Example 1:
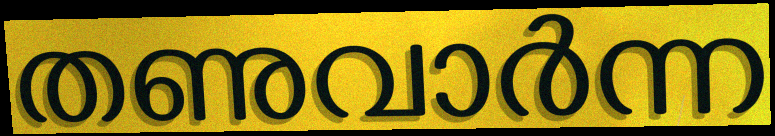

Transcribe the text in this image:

തണുവാർന്ന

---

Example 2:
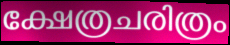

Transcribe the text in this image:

ക്ഷേത്രചരിത്രം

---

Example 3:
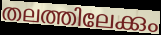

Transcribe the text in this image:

തലത്തിലേക്കും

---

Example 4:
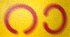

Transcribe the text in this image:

റാ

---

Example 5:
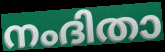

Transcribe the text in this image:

നംദിതാ